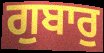
ਗੁਬਾਰੁ